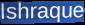
Ishraque